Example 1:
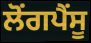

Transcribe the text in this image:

ਲੋਂਗਪੈਂਸੂ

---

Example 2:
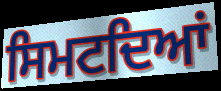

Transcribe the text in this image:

ਸਿਮਟਦਿਆਂ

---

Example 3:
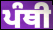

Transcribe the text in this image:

ਪੰਥੀ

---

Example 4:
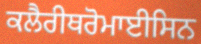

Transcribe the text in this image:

ਕਲੈਰੀਥਰੋਮਾਈਸਿਨ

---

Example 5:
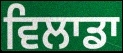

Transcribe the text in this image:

ਵਿਲਾਡਾ